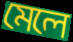
মেলে